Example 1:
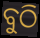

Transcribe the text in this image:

ବୁଠି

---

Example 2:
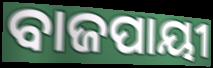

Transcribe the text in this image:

ବାଜପାୟୀ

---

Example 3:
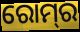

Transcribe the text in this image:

ରୋମ୍‌ର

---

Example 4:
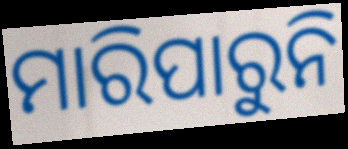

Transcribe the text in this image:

ମାରିପାରୁନି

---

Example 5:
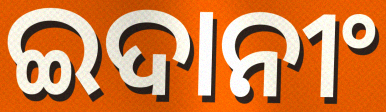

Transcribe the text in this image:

ଇଦାନୀଂ